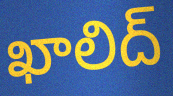
ఖాలిద్